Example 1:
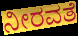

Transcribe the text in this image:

ನೀರವತೆ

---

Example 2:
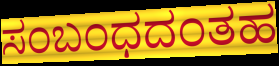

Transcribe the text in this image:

ಸಂಬಂಧದಂತಹ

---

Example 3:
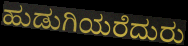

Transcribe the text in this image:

ಹುಡುಗಿಯರೆದುರು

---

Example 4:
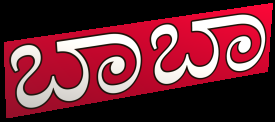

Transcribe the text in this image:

ಬಾಬಾ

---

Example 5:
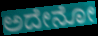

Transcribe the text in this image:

ಅದೇನೋ